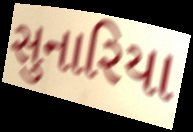
સુનારિયા